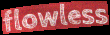
flowless